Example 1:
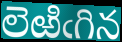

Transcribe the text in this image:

లెఱిఁగిన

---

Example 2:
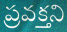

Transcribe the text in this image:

ప్రవక్తని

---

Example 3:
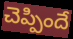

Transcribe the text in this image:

చెప్పిందే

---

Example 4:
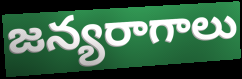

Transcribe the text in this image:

జన్యరాగాలు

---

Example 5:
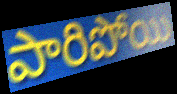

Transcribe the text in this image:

పారిపోయి